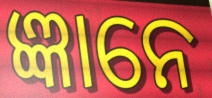
ଜ୍ଞାନେ